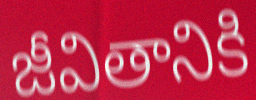
జీవితానికి